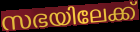
സഭയിലേക്ക്